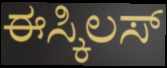
ಈಸ್ಕಿಲಸ್